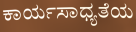
ಕಾರ್ಯಸಾಧ್ಯತೆಯ